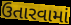
ઉતારવામાં